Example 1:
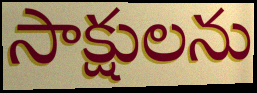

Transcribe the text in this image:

సాక్షులను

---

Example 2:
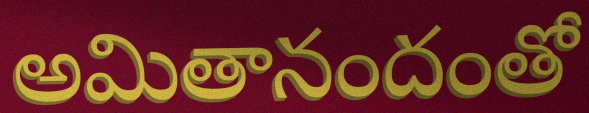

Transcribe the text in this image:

అమితానందంతో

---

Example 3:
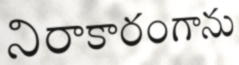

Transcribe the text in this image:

నిరాకారంగాను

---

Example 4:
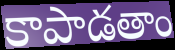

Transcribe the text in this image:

కాపాడతాం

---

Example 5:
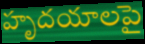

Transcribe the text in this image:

హృదయాలపై